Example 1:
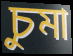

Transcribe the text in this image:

চুমা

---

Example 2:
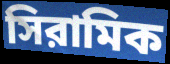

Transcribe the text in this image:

সিরামিক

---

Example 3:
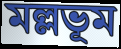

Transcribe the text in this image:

মল্লভূম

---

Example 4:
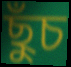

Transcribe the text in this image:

ছুঁচ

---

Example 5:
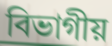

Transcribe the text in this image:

বিভাগীয়